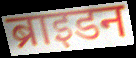
ब्राइडन